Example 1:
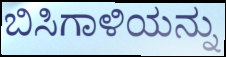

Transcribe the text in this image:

ಬಿಸಿಗಾಳಿಯನ್ನು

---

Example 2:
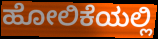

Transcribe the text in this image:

ಹೋಲಿಕೆಯಲ್ಲಿ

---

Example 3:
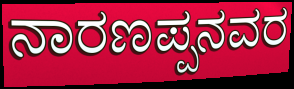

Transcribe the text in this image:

ನಾರಣಪ್ಪನವರ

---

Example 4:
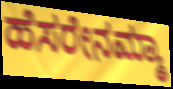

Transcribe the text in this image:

ಹೆಸರೇನಮ್ಮಾ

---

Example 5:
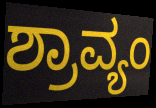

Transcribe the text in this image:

ಶ್ರಾವ್ಯಂ